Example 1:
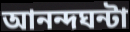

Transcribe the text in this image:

আনন্দঘন্টা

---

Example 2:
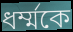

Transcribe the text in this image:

ধর্ম্মকে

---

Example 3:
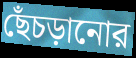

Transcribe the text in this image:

ছেঁচড়ানোর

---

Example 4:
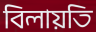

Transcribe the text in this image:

বিলায়তি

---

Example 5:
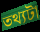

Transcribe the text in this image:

তথ্যটা